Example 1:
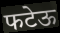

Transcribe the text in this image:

फटेऊ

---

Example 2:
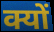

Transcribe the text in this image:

क्यों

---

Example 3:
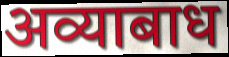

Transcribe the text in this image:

अव्याबाध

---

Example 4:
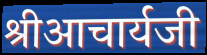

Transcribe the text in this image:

श्रीआचार्यजी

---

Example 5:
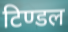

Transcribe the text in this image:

टिण्डल